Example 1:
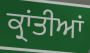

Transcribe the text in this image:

ਕ੍ਰਾਂਤੀਆਂ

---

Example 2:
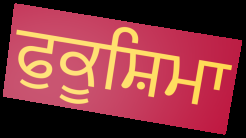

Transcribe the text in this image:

ਫੁਕੂਸ਼ਿਮਾ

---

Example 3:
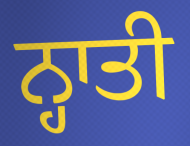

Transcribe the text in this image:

ਨ੍ਹਾਤੀ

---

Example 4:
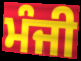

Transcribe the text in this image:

ਮੰਜੀ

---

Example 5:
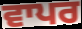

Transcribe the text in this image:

ਵਾਪਰ